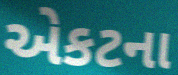
એકટના